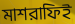
মাশরাফিই